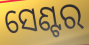
ସେଣ୍ଟର